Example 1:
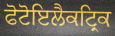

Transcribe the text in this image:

ਫੋਟੋਇਲੈਕਟ੍ਰਿਕ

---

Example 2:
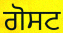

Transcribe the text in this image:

ਗੋਸਟ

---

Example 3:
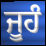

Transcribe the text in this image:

ਜੂਹੰ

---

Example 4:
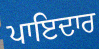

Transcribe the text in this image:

ਪਾਇਦਾਰ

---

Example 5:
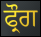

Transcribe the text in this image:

ਫ੍ਰੌਗ